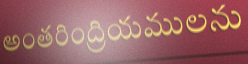
అంతరింద్రియములను